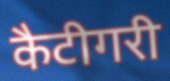
कैटीगरी